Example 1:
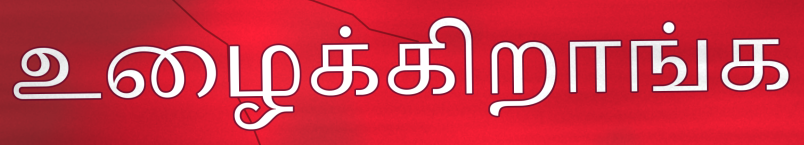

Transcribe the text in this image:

உழைக்கிறாங்க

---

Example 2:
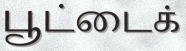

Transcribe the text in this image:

பூட்டைக்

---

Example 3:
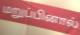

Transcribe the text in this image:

மறுப்பினால்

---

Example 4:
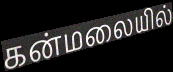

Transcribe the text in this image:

கன்மலையில்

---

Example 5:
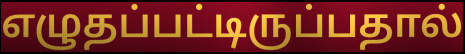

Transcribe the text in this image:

எழுதப்பட்டிருப்பதால்